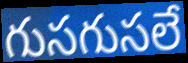
గుసగుసలే